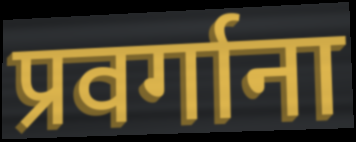
प्रवर्गाना